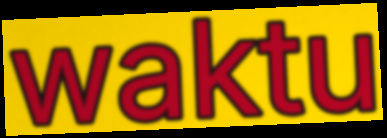
waktu